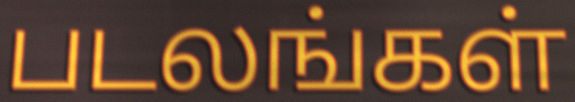
படலங்கள்